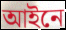
আইনে